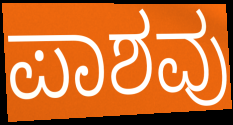
ಪಾಶವು